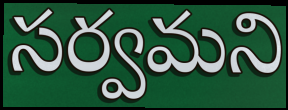
సర్వమని